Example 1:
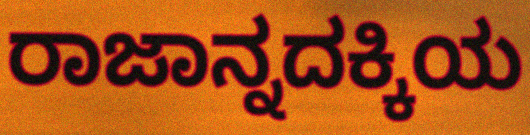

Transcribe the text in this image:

ರಾಜಾನ್ನದಕ್ಕಿಯ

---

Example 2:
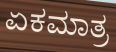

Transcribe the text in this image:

ಏಕಮಾತ್ರ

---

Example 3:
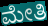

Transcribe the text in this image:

ಮೇತಿ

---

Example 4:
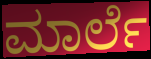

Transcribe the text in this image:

ಮಾರ್ಲೆ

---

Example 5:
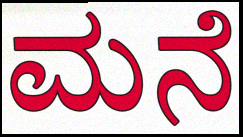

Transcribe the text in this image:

ಮನೆ